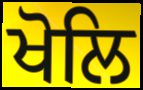
ਖੋਲਿ